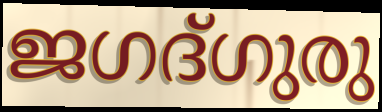
ജഗദ്ഗുരു